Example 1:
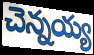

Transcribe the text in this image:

చెన్నయ్య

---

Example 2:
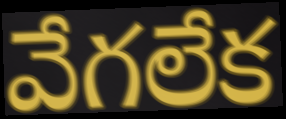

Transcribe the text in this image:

వేగలేక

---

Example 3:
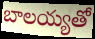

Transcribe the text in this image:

బాలయ్యతో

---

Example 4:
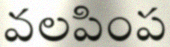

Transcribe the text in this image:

వలపింప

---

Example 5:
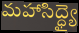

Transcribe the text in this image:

మహాసిద్ధ్యై